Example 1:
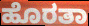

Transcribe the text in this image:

ಹೊರತಾ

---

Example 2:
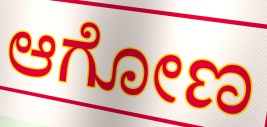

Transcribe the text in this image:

ಆಗೋಣ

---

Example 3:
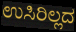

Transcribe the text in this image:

ಉಸಿರಿಲ್ಲದ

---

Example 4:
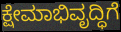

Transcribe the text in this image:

ಕ್ಷೇಮಾಭಿವೃದ್ಧಿಗೆ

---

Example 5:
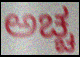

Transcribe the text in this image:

ಅಚ್ಚ